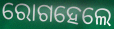
ରୋଗହେଲେ